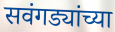
सवंगड्यांच्या